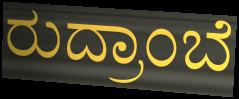
ರುದ್ರಾಂಬೆ